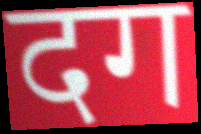
दग